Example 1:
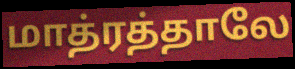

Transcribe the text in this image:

மாத்ரத்தாலே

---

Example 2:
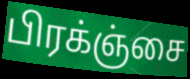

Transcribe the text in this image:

பிரக்ஞ்சை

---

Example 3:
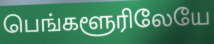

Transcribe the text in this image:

பெங்களூரிலேயே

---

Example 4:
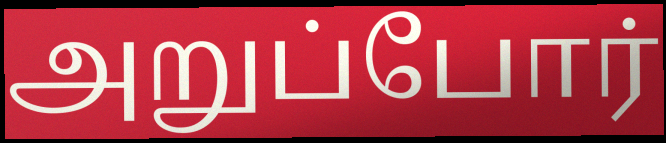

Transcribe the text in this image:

அறுப்போர்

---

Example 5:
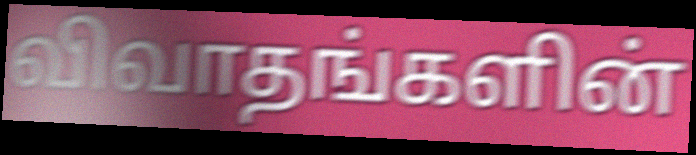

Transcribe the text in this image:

விவாதங்களின்